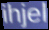
ihjel